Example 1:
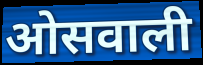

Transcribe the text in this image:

ओसवाली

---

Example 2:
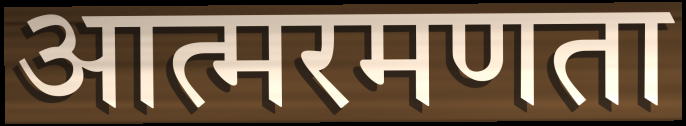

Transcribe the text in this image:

आत्मरमणता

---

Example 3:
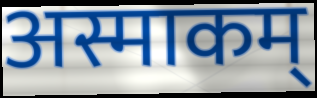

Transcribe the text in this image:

अस्माकम्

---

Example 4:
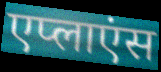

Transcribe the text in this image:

एप्लाएंस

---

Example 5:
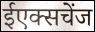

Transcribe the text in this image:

ईएक्सचेंज